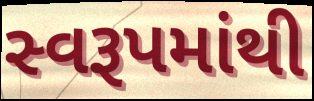
સ્વરૂપમાંથી